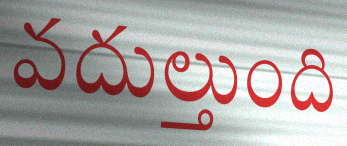
వదుల్తుంది